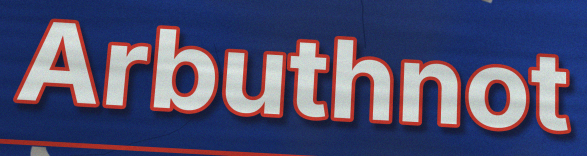
Arbuthnot